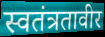
स्वतंत्रतावीर